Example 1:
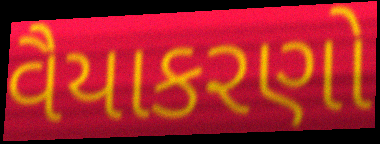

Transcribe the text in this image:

વૈયાકરણો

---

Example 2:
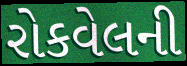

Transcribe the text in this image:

રોકવેલની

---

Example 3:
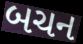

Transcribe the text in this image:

બચન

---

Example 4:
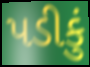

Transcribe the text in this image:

પડીકું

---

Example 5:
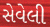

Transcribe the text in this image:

સેવેલી